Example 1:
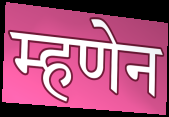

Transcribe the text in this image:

म्हणेन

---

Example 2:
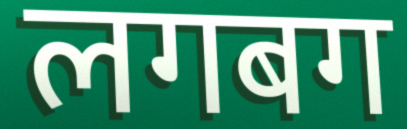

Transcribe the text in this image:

लगबग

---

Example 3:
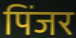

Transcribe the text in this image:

पिंजर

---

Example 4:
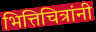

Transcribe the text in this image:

भित्तिचित्रांनी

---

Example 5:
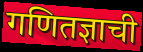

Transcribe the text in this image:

गणितज्ञाची